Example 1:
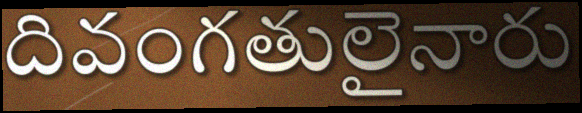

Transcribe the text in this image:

దివంగతులైనారు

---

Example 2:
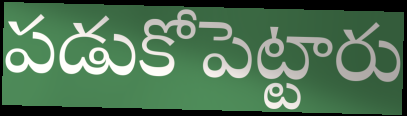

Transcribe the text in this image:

పడుకోపెట్టారు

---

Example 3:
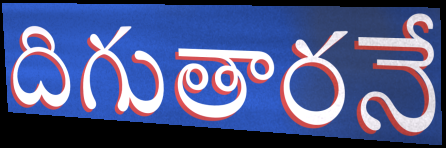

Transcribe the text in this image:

దిగుతారనే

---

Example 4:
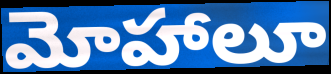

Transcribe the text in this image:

మోహాలూ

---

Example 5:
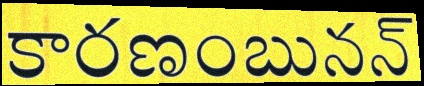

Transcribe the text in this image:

కారణంబునన్